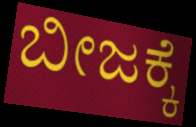
ಬೀಜಕ್ಕೆ